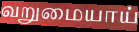
வறுமையாய்